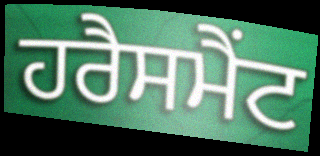
ਹਰੈਸਮੈਂਟ